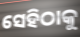
ସେହିଠାକୁ